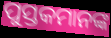
ପୁସ୍ତକମାନଙ୍କ